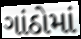
ગાંઠોમાં